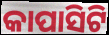
କାପାସିଟି